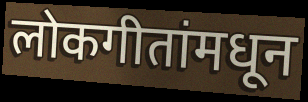
लोकगीतांमधून